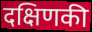
दक्षिणकी